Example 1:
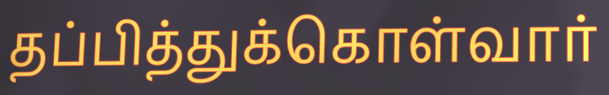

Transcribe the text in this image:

தப்பித்துக்கொள்வார்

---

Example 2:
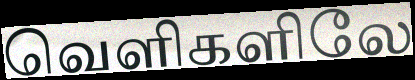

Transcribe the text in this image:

வெளிகளிலே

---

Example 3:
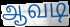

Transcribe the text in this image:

ஆவடி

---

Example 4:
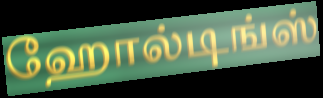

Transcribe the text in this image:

ஹோல்டிங்ஸ்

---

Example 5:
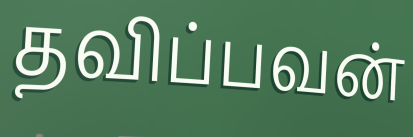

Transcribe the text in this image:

தவிப்பவன்